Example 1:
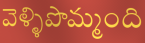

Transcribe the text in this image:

వెళ్ళిపొమ్మంది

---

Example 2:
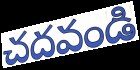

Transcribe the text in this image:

చదవండి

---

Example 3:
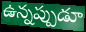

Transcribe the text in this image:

ఉన్నప్పుడూ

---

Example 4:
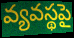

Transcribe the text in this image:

వ్యవస్థపై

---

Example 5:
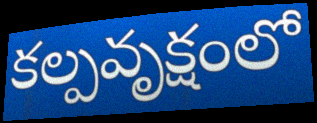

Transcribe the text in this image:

కల్పవృక్షంలో